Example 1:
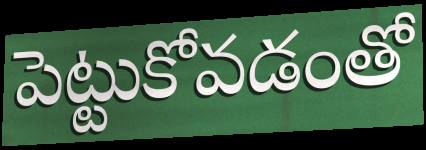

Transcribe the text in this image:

పెట్టుకోవడంతో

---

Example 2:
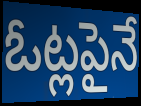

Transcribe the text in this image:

ఓట్లపైనే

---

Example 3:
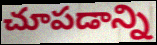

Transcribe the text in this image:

చూపడాన్ని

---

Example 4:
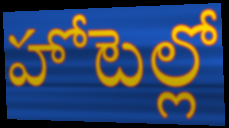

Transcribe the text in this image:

హోటెల్లో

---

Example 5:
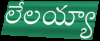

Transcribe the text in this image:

లేలయ్యా